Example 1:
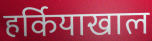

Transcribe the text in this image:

हर्कियाखाल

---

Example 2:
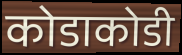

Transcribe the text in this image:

कोडाकोडी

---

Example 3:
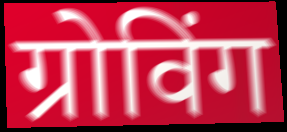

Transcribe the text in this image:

ग्रोविंग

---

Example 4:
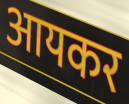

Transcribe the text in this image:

आयकर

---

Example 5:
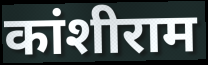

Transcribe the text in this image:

कांशीराम